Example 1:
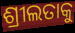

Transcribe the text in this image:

ଶ୍ରୀଲତାକୁ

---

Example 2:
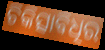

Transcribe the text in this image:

ଚିକିତ୍ସାବିଧିର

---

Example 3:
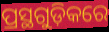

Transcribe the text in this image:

ପ୍ରସ୍ଥଗୁଡ଼ିକରେ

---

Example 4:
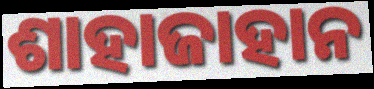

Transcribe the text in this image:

ଶାହାଜାହାନ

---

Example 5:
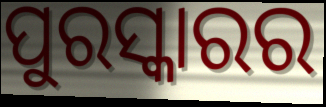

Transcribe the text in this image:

ପୁରସ୍କାରର